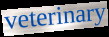
veterinary